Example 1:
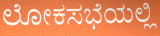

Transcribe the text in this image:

ಲೋಕಸಭೆಯಲ್ಲಿ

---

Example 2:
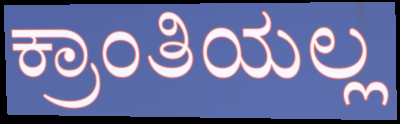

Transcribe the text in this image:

ಕ್ರಾಂತಿಯಲ್ಲ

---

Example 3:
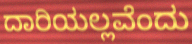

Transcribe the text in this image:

ದಾರಿಯಲ್ಲವೆಂದು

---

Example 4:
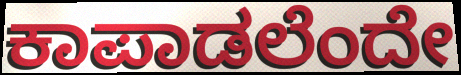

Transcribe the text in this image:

ಕಾಪಾಡಲೆಂದೇ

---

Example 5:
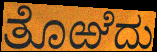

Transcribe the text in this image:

ತೊಱೆದು